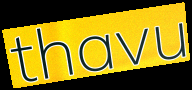
thavu